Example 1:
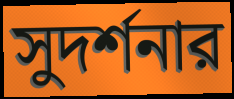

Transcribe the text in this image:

সুদর্শনার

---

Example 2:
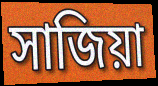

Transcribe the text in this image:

সাজিয়া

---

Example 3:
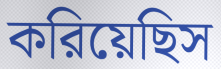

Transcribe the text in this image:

করিয়েছিস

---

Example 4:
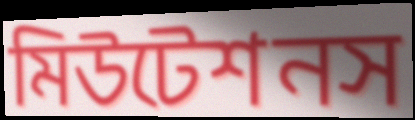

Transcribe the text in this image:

মিউটেশনস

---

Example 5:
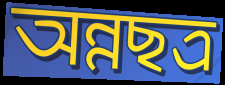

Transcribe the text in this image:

অন্নছত্র